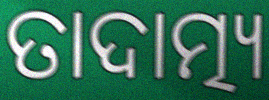
ତାଦାତ୍ମ୍ୟ